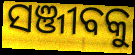
ସଞ୍ଜୀବକୁ